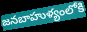
జనబాహుళ్యంలోకి